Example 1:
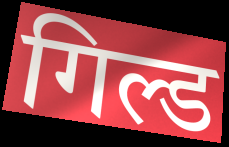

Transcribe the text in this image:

गिल्ड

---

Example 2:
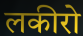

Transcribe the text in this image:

लकीरो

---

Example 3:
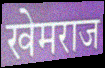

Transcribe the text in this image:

खेमराज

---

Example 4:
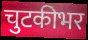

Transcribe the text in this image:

चुटकीभर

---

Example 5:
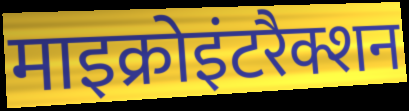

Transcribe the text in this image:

माइक्रोइंटरैक्शन